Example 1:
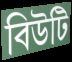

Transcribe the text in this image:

বিউটি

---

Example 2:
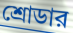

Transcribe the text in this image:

শ্রোডার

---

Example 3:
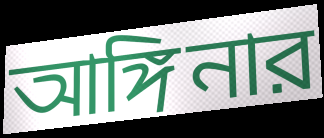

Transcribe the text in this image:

আঙ্গিনার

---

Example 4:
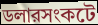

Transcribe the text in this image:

ডলারসংকটে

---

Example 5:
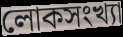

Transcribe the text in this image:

লোকসংখ্যা